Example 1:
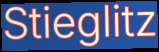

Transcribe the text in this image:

Stieglitz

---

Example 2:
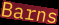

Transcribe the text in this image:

Barns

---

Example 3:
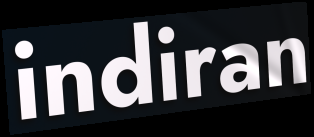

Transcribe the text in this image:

indiran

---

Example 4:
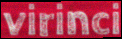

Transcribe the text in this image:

virinci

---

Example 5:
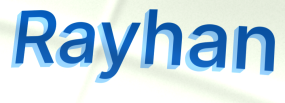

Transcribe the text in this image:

Rayhan